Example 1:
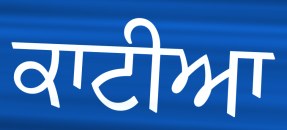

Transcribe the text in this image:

ਕਾਟੀਆ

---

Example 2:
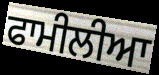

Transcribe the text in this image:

ਫਾਮੀਲੀਆ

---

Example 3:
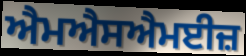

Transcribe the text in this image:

ਐਮਐਸਐਮਈਜ਼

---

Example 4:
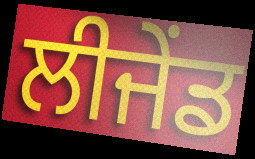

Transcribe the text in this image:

ਲੀਜੇਂਡ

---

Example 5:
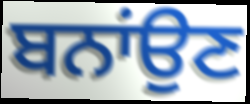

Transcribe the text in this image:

ਬਨਾਂਉਣ